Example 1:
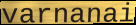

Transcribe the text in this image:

varnanai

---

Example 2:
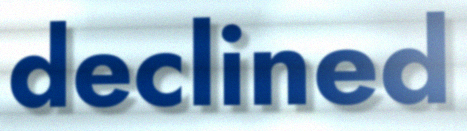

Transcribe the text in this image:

declined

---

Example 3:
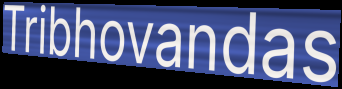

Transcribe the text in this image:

Tribhovandas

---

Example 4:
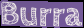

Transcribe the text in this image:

Burra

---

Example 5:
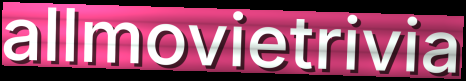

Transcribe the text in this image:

allmovietrivia